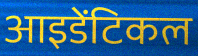
आइडेंटिकल